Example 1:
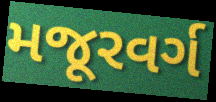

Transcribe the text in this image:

મજૂરવર્ગ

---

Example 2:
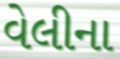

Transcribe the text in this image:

વેલીના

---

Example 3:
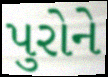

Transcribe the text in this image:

પુરોને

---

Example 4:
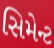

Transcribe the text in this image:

સિમેન્ટ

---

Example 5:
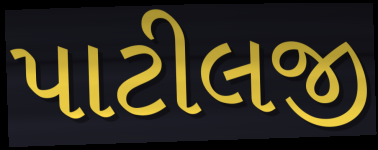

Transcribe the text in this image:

પાટીલજી